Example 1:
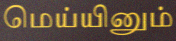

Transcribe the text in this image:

மெய்யினும்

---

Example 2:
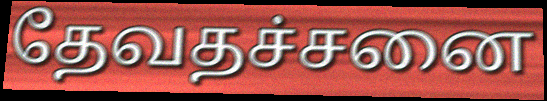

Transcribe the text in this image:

தேவதச்சனை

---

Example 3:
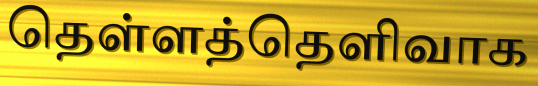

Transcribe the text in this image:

தெள்ளத்தெளிவாக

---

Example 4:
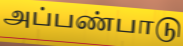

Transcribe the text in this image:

அப்பண்பாடு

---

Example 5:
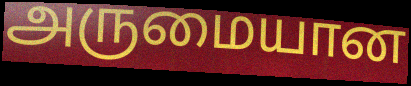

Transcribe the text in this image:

அருமையான